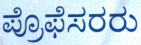
ಪ್ರೊಫೆಸರರು